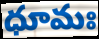
ధూమః